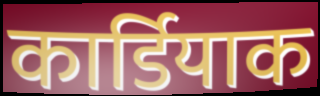
कार्डियाक